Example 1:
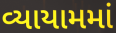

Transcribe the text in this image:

વ્યાયામમાં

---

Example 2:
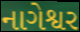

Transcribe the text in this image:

નાગેશ્વર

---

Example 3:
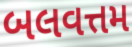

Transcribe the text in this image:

બલવત્તમ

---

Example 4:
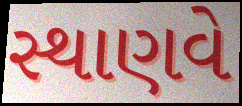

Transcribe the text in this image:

સ્થાણવે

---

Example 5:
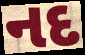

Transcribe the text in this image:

નદ